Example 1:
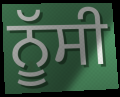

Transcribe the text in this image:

ਨੂੱਸੀ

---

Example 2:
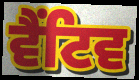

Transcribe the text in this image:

ਵੈਂਟਿਵ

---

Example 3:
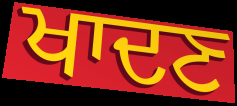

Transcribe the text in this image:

ਖਾਦਣ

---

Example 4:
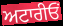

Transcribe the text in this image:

ਅਟਾਰੀਓਂ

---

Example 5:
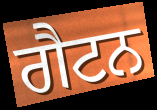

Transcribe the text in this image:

ਗੈਟਨ